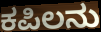
ಕಪಿಲನು